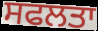
ਸਫਲਤਾ